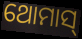
ଥୋମାସ୍